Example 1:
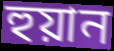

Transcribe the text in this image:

হুয়ান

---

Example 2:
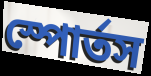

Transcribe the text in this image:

স্পোর্তস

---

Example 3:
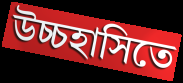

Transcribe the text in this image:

উচ্চহাসিতে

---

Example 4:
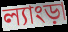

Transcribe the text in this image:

ল্যাংড়া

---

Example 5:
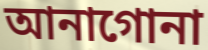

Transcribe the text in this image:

আনাগোনা